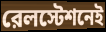
রেলস্টেশনেই